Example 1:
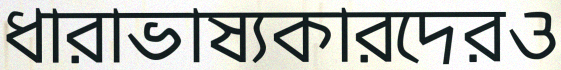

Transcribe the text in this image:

ধারাভাষ্যকারদেরও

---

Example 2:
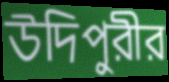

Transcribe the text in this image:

উদিপুরীর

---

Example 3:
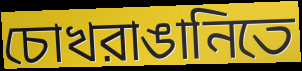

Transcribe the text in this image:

চোখরাঙানিতে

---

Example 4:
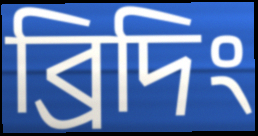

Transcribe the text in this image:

ব্রিদিং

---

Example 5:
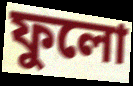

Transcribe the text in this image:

ফুলো